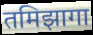
तमिझागा